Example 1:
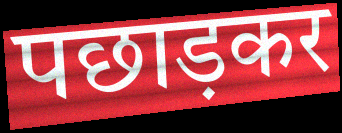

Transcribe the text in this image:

पछाड़कर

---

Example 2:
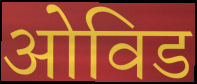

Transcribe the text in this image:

ओविड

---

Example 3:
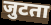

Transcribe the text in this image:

जुटता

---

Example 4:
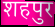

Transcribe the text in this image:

शहपुर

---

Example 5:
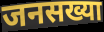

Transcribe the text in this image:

जनसख्या